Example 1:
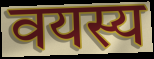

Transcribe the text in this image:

वयस्य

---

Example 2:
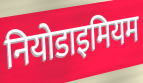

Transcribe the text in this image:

नियोडाइमियम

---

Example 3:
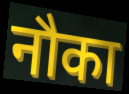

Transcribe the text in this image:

नौका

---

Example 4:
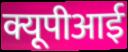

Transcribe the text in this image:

क्यूपीआई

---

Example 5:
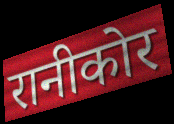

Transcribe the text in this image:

रानीकोर